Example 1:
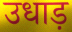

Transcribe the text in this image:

उधाड़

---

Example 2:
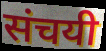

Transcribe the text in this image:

संचयी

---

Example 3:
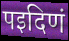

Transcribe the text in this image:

पइदिणं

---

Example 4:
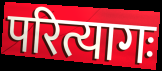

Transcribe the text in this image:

परित्यागः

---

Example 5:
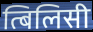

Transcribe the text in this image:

त्बिलिसी